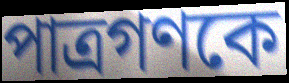
পাত্রগণকে